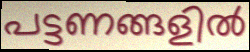
പട്ടണങ്ങളിൽ